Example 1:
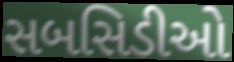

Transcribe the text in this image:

સબસિડીઓ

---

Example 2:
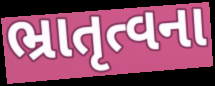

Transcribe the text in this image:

ભ્રાતૃત્વના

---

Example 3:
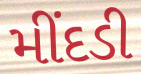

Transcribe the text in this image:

મીંદડી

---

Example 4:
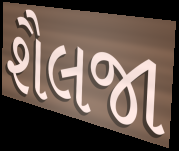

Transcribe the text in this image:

શૈલજા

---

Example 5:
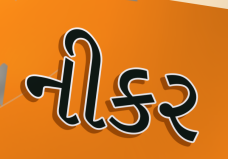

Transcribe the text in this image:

નીકર